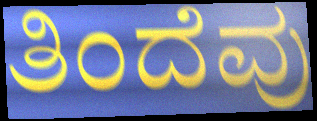
ತಿಂದೆವು